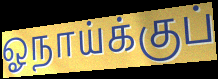
ஓநாய்க்குப்